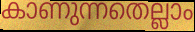
കാണുന്നതെല്ലാം